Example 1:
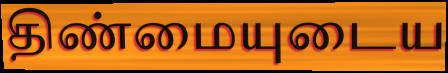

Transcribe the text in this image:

திண்மையுடைய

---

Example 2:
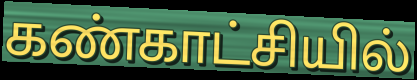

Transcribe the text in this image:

கண்காட்சியில்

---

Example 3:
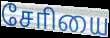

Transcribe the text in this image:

சேரியை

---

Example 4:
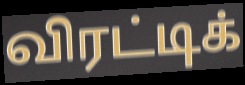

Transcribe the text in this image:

விரட்டிக்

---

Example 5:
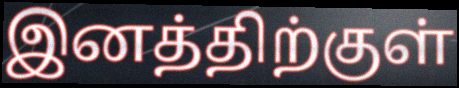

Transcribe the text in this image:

இனத்திற்குள்